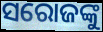
ସରୋଜଙ୍କୁ